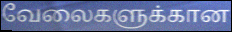
வேலைகளுக்கான